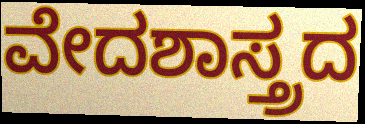
ವೇದಶಾಸ್ತ್ರದ